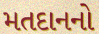
મતદાનનો